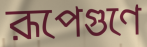
রূপেগুণে